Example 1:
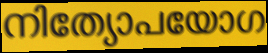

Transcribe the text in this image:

നിത്യോപയോഗ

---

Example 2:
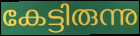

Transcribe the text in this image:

കേട്ടിരുന്നു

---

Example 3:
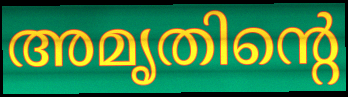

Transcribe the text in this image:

അമൃതിന്റെ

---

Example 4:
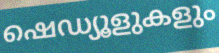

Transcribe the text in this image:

ഷെഡ്യൂളുകളും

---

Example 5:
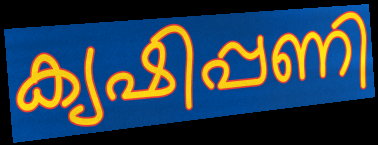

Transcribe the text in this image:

ക്യഷിപ്പണി